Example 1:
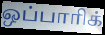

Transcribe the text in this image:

ஒப்பாரிக்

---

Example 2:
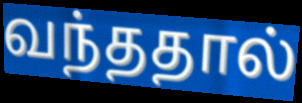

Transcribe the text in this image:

வந்ததால்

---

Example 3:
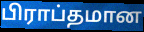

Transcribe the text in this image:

பிராப்தமான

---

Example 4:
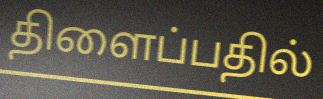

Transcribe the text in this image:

திளைப்பதில்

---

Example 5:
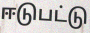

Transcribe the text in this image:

ஈடுபட்டு